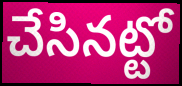
చేసినట్టో